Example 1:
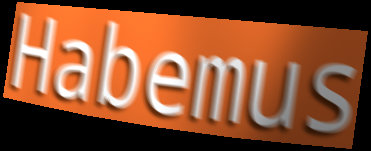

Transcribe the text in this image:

Habemus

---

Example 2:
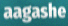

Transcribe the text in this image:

aagashe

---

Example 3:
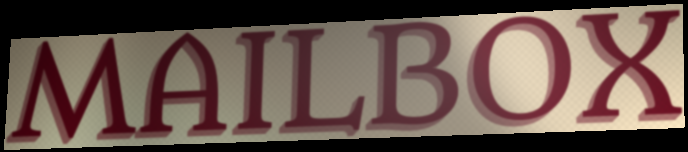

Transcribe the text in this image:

MAILBOX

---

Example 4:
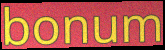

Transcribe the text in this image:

bonum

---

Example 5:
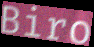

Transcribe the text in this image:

Biro